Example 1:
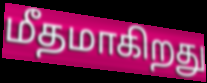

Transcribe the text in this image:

மீதமாகிறது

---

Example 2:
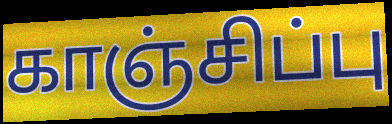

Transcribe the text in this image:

காஞ்சிப்பு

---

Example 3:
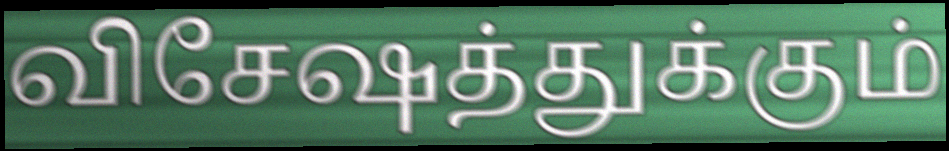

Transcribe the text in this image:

விசேஷத்துக்கும்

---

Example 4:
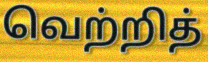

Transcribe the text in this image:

வெற்றித்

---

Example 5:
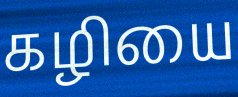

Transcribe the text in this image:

கழியை